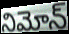
నిమోన్